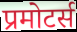
प्रमोटर्स